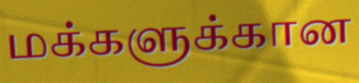
மக்களுக்கான